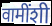
वामींशी